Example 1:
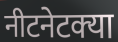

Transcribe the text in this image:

नीटनेटक्‍या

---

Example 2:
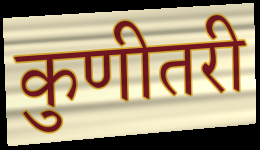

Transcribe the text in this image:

कुणीतरी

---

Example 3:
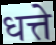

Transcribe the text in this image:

धत्ते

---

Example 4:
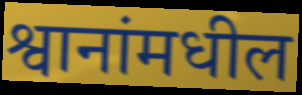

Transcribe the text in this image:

श्वानांमधील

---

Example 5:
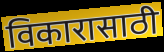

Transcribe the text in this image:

विकारासाठी